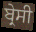
ਬ੍ਰੇਸੀ